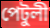
পেটুলী